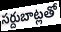
సర్దుబాట్లతో